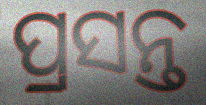
ପ୍ରସନ୍ତ